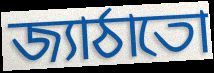
জ্যাঠাতো